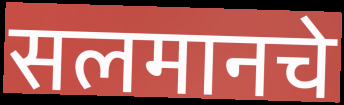
सलमानचे